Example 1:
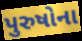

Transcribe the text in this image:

પુરુષોના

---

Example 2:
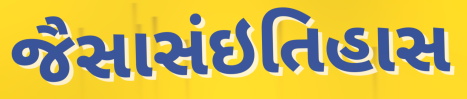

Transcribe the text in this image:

જૈસાસંઇતિહાસ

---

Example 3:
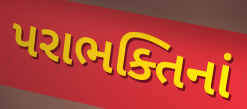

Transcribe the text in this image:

પરાભક્તિનાં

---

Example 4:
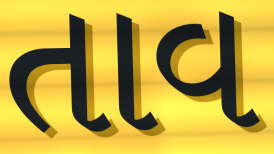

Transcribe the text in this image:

તાવ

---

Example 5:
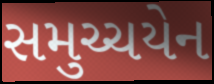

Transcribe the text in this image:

સમુચ્ચયેન